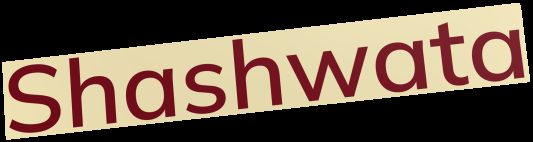
Shashwata